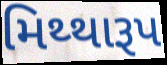
મિથ્થારૂપ